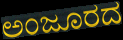
ಅಂಜೂರದ